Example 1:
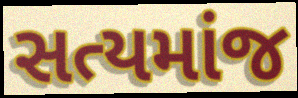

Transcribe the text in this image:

સત્યમાંજ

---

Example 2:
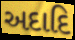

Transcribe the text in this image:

અદાદિ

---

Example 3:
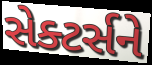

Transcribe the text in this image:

સેક્ટર્સને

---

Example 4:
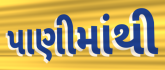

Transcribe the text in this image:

પાણીમાંથી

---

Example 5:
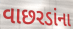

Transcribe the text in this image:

વાછરડાંના